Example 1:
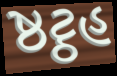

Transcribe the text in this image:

ષ્ઠટ્ઠહ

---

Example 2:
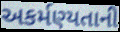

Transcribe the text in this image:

અકર્મણ્યતાની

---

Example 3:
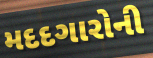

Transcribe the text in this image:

મદદગારોની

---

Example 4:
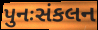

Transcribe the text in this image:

પુનઃસંકલન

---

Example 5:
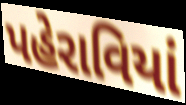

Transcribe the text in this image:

પહેરાવિયાં